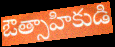
ఔత్సాహికుడి